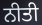
ਨੀਤੀ